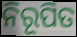
ନିରୂପିତ